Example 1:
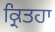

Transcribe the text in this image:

ਕ੍ਰਿਤਹਾ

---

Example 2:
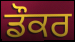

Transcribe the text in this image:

ਡੌਕਰ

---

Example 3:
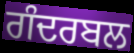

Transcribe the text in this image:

ਗੰਦਰਬਲ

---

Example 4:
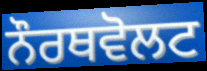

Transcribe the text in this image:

ਨੌਰਥਵੋਲਟ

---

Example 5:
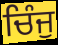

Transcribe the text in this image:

ਚਿੰਜੁ